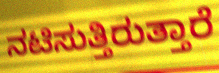
ನಟಿಸುತ್ತಿರುತ್ತಾರೆ